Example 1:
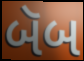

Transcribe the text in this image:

બૅબ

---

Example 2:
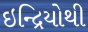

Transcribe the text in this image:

ઇન્દ્રિયોથી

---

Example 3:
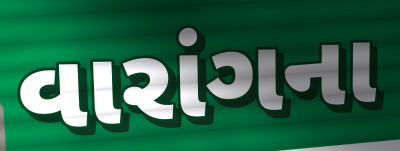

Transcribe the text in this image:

વારાંગના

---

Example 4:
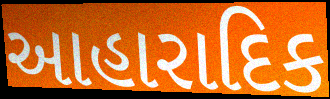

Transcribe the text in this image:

આહારાદિક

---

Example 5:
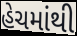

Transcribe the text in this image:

હેચમાંથી